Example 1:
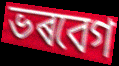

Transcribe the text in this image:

ভৰবেগ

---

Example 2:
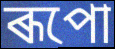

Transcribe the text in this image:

ৰূপো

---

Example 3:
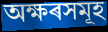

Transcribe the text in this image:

অক্ষৰসমূহ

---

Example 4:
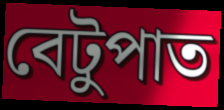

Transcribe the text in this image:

বেটুপাত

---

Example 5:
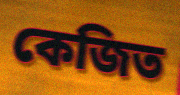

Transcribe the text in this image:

কেজিত